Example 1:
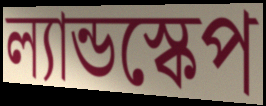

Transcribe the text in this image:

ল্যান্ডস্কেপ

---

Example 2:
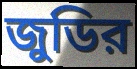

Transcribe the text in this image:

জুডির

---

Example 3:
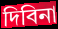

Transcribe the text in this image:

দিবিনা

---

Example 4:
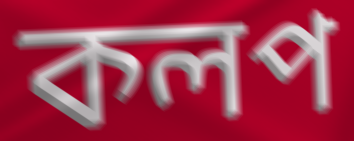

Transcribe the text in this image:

কলপ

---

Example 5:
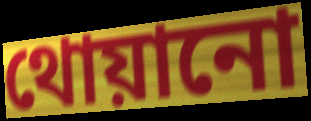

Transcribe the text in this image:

থোয়ানো